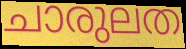
ചാരുലത